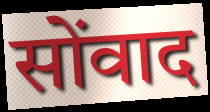
सोंवाद